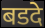
बडदे